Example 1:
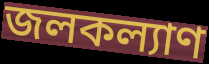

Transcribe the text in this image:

জলকল্যাণ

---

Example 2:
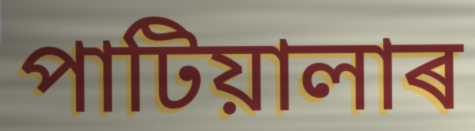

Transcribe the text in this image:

পাটিয়ালাৰ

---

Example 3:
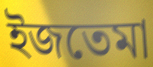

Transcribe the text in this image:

ইজতেমা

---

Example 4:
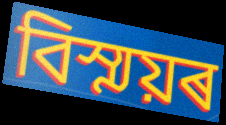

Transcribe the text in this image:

বিস্ময়ৰ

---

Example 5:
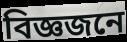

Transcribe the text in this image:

বিজ্ঞজনে